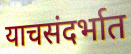
याचसंदर्भात